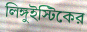
লিঙ্গুইস্টিকের